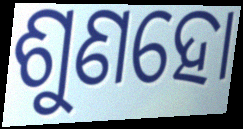
ଶୁଣହୋ